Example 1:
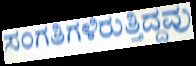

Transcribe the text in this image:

ಸಂಗತಿಗಳಿರುತ್ತಿದ್ದವು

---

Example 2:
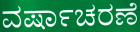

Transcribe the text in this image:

ವರ್ಷಾಚರಣೆ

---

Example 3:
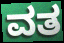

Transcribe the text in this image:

ವತ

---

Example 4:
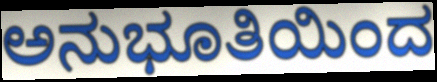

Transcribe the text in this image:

ಅನುಭೂತಿಯಿಂದ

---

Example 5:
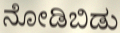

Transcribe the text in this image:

ನೋಡಿಬಿಡು